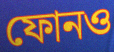
ফোনও